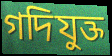
গদিযুক্ত